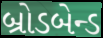
બ્રોડબેન્ડ